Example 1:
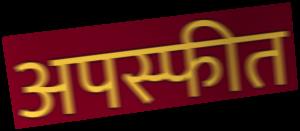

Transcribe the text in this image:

अपस्फीत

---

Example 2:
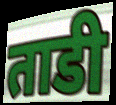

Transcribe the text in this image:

ताडी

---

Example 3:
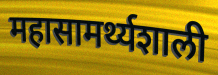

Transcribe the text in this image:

महासामर्थ्यशाली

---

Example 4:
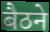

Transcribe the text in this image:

बैठने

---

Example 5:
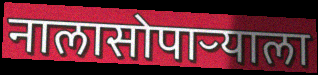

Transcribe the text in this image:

नालासोपाऱ्याला